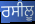
ਰਸੀਲੂ